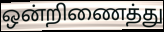
ஒன்றிணைத்து